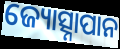
ଜ୍ୟୋତ୍ସ୍ନାପାନ